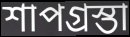
শাপগ্রস্তা